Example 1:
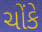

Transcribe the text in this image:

ચોંકે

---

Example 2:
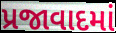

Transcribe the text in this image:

પ્રજાવાદમાં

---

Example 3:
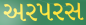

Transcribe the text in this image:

અરપરસ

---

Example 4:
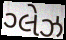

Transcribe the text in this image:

ગ્લેઝ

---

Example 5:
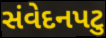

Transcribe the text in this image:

સંવેદનપટુ